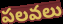
పలవలు